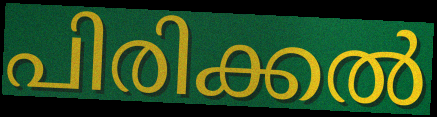
പിരിക്കൽ